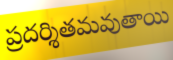
ప్రదర్శితమవుతాయి